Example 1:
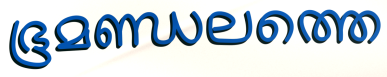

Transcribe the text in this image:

ഭൂമണ്ഡലത്തെ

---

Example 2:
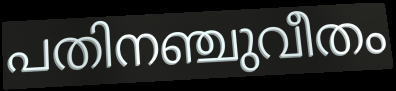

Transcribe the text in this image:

പതിനഞ്ചുവീതം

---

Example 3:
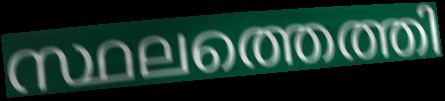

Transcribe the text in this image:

സ്ഥലത്തെത്തി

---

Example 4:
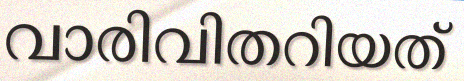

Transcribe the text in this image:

വാരിവിതറിയത്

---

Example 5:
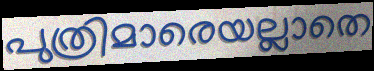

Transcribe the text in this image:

പുത്രിമാരെയല്ലാതെ